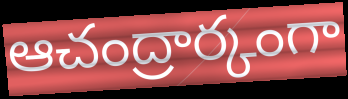
ఆచంద్రార్కంగా